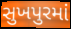
સુખપુરમાં